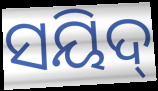
ସୟିଦ୍